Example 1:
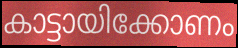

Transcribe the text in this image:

കാട്ടായിക്കോണം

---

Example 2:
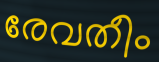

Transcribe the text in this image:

രേവതീം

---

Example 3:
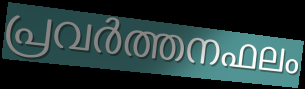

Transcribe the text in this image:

പ്രവർത്തനഫലം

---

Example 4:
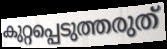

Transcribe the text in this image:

കുറ്റപ്പെടുത്തരുത്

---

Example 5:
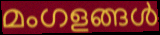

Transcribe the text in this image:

മംഗളങ്ങൾ